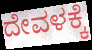
ದೇವಳಕ್ಕೆ